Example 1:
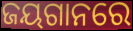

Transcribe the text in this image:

ଜୟଗାନରେ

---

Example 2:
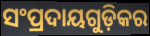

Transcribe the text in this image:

ସଂପ୍ରଦାୟଗୁଡ଼ିକର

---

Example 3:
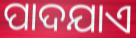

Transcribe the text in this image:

ପାଦଯାଏ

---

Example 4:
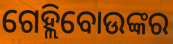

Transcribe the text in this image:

ଗେହ୍ଲିବୋଉଙ୍କର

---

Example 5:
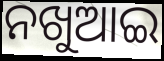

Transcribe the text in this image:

ନଖୁଆଇ